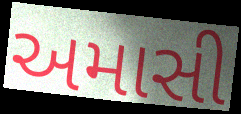
અમાસી